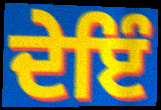
ਦੇਇੰ